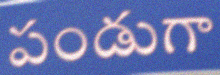
పండుగా